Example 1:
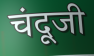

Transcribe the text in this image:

चंदूजी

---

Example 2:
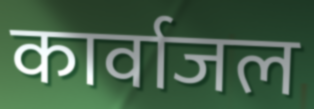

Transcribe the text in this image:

कार्वाजल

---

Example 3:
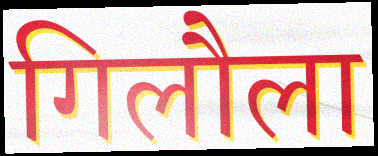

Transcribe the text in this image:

गिलौला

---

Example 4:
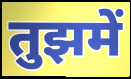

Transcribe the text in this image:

तुझमें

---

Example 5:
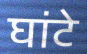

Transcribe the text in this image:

घांटे